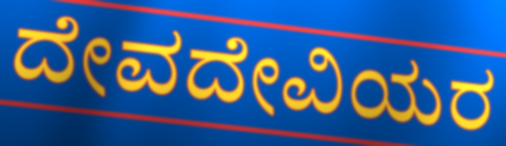
ದೇವದೇವಿಯರ